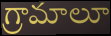
గ్రామాలూ